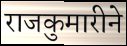
राजकुमारीने